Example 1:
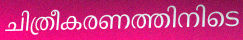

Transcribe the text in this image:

ചിത്രീകരണത്തിനിടെ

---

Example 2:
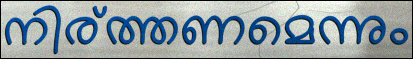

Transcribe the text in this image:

നിര്ത്തണമെന്നും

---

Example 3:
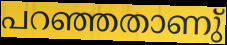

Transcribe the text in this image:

പറഞ്ഞതാണു്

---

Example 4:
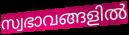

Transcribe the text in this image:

സ്വഭാവങ്ങളിൽ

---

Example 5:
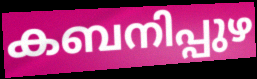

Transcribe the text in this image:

കബനിപ്പുഴ